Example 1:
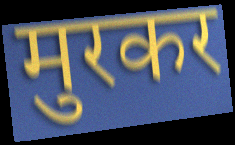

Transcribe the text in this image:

मुरकर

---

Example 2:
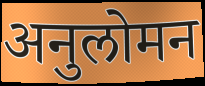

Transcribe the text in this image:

अनुलोमन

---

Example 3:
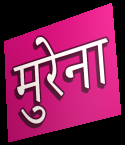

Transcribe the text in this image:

मुरेना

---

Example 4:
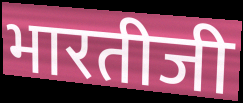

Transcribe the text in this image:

भारतीजी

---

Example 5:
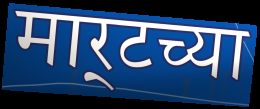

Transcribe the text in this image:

मार्टच्या